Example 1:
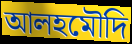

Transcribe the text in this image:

আলহমৌদি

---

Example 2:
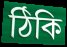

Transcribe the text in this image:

ঠিকি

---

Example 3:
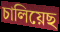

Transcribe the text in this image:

চালিয়েছ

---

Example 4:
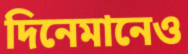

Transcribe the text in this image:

দিনেমানেও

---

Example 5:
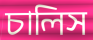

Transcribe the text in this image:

চালিস